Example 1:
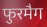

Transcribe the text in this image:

फुरमैग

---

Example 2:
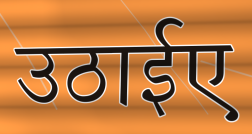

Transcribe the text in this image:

उठाईए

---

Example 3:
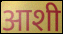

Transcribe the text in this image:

आशी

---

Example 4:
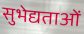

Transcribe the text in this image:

सुभेद्यताओं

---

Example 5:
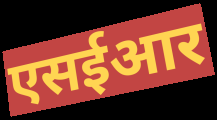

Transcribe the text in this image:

एसईआर